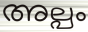
അല്പം